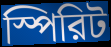
স্পিরিট